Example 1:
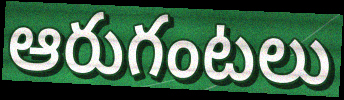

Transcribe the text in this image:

ఆరుగంటలు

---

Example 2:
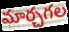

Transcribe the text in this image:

మార్చగల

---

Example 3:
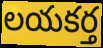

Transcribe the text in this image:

లయకర్త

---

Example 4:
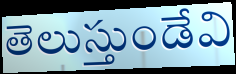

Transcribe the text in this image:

తెలుస్తుండేవి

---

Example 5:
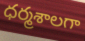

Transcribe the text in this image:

ధర్మశాలగా